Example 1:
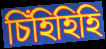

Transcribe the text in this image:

চিঁহিহিহি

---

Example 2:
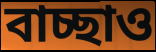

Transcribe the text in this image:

বাচ্ছাও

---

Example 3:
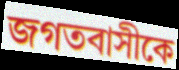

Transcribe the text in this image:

জগতবাসীকে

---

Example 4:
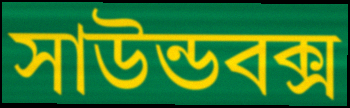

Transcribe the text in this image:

সাউন্ডবক্স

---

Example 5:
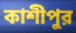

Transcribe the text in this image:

কাশীপুর